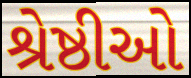
શ્રેષ્ઠીઓ